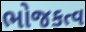
ભોજકત્વ